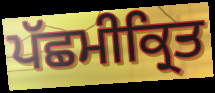
ਪੱਛਮੀਕ੍ਰਿਤ